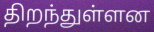
திறந்துள்ளன